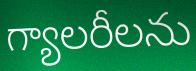
గ్యాలరీలను